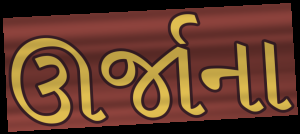
ઊર્જાના